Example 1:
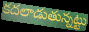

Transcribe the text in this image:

కదలాడుతున్నట్టు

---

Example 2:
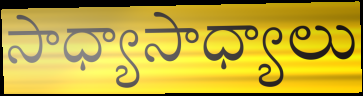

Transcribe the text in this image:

సాధ్యాసాధ్యాలు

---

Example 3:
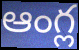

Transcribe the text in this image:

ఆంగ్ల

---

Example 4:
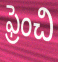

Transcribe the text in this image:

ఫ్రెంచి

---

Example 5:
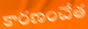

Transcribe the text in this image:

కారణంచేత